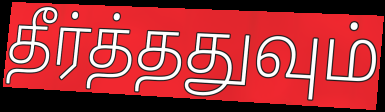
தீர்த்ததுவும்